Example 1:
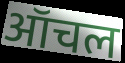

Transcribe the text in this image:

ऑचल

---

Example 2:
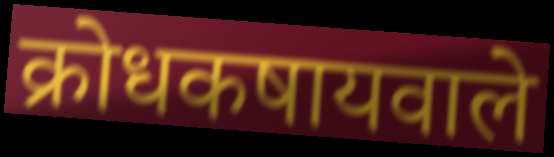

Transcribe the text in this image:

क्रोधकषायवाले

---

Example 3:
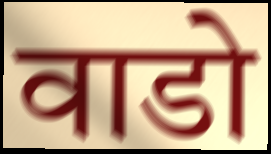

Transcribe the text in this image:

वाडो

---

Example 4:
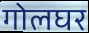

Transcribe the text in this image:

गोलघर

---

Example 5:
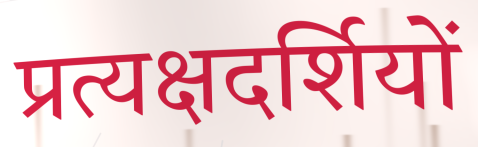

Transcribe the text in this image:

प्रत्यक्षदर्शियों